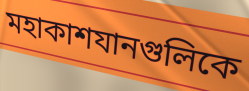
মহাকাশযানগুলিকে